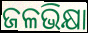
ଜଳଭିକ୍ଷା